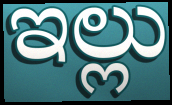
ఇల్లు